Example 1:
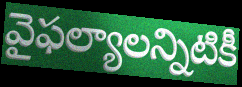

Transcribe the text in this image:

వైఫల్యాలన్నిటికీ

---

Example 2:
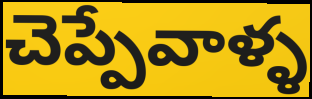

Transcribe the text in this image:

చెప్పేవాళ్ళ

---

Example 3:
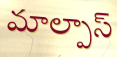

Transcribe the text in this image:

మాల్పాస్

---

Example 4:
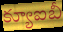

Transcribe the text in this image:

క్యూఐబీ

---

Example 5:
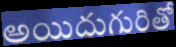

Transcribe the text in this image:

అయిదుగురితో